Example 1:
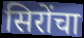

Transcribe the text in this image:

सिरोंचा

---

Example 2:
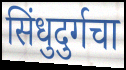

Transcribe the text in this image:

सिंधुदुर्गचा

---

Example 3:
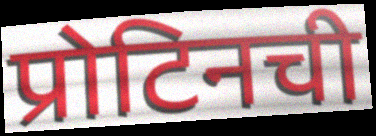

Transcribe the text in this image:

प्रोटिनची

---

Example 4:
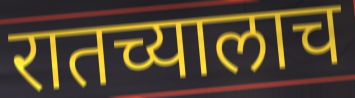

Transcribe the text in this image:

रातच्यालाच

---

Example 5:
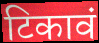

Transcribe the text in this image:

टिकावं